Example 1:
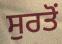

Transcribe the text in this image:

ਸੁਰਤੋਂ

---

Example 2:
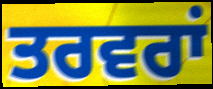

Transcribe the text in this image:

ਤਰਵਰਾਂ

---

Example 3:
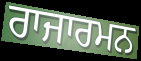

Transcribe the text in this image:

ਰਾਜਾਰਮਨ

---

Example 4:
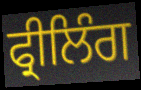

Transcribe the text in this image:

ਫ੍ਰੀਲਿੰਗ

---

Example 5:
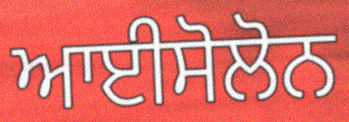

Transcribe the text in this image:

ਆਈਸੋਲੋਨ